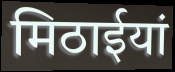
मिठाईयां